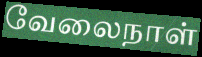
வேலைநாள்